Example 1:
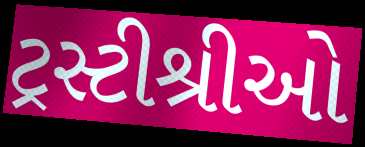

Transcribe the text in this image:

ટ્રસ્ટીશ્રીઓ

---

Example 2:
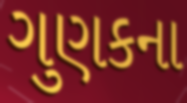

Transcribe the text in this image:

ગુણકના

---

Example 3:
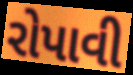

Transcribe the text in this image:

રોપાવી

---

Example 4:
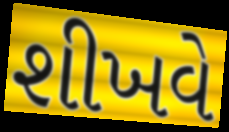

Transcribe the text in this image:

શીખવે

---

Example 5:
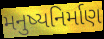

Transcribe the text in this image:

મનુષ્યનિર્માણ